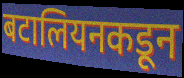
बटालियनकडून